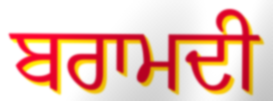
ਬਰਾਮਦੀ